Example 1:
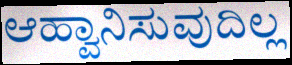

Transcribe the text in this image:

ಆಹ್ವಾನಿಸುವುದಿಲ್ಲ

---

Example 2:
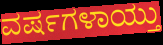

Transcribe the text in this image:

ವರ್ಷಗಳಾಯ್ತು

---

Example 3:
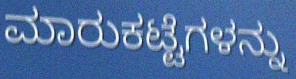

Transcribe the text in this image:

ಮಾರುಕಟ್ಟೆಗಳನ್ನು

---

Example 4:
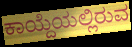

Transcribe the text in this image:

ಕಾಯ್ದೆಯಲ್ಲಿರುವ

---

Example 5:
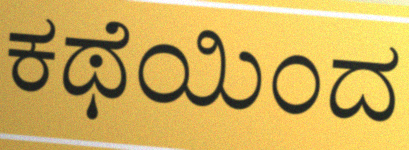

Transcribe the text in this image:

ಕಥೆಯಿಂದ